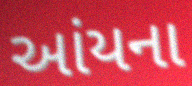
આંયના